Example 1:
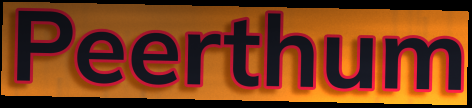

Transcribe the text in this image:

Peerthum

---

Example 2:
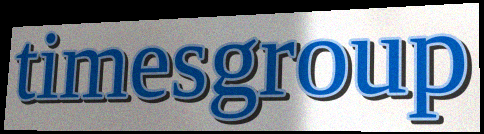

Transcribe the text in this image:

timesgroup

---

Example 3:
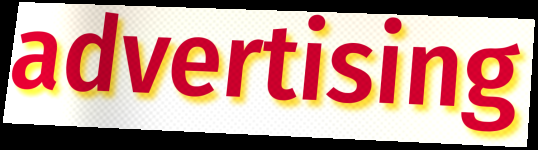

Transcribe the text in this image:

advertising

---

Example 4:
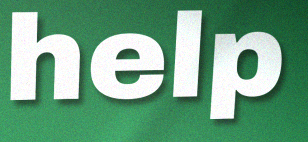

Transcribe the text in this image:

help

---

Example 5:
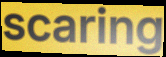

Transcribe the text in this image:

scaring